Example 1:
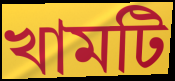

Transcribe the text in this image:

খামটি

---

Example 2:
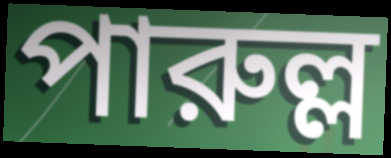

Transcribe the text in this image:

পারুল্ল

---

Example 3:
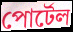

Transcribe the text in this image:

পোর্টেল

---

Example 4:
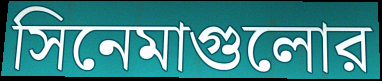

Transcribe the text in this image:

সিনেমাগুলোর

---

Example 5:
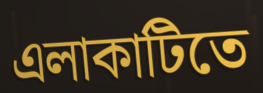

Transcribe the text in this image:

এলাকাটিতে